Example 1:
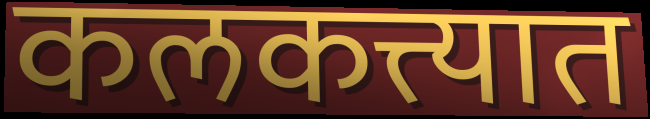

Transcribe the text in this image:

कलकत्त्यात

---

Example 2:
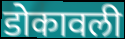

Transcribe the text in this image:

डोकावली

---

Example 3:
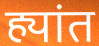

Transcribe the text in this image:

ह्यांत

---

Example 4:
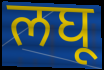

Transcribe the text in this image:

लघू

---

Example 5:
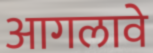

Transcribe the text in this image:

आगलावे